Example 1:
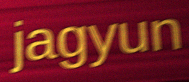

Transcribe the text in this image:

jagyun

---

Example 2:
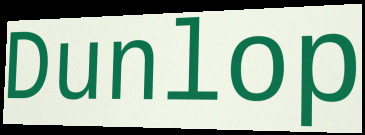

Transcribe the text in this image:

Dunlop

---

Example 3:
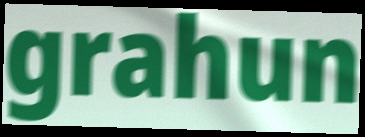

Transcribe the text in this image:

grahun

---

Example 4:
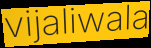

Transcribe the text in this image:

vijaliwala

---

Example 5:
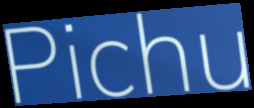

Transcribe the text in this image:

Pichu